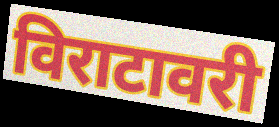
विराटावरी